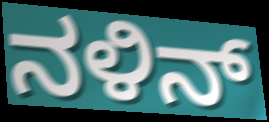
ನಳಿನ್